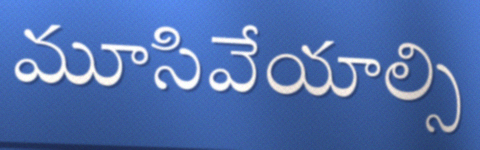
మూసివేయాల్సి